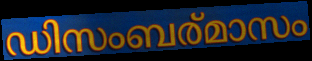
ഡിസംബര്മാസം